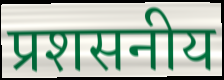
प्रशसनीय